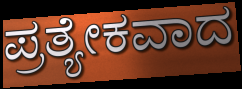
ಪ್ರತ್ಯೇಕವಾದ